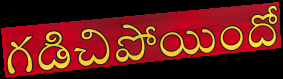
గడిచిపోయిందో